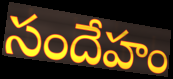
సందేహం